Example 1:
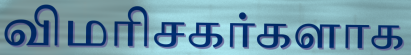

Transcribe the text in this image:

விமரிசகர்களாக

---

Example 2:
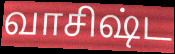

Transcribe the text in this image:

வாசிஷ்ட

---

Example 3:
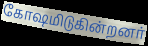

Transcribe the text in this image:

கோஷமிடுகின்றனர்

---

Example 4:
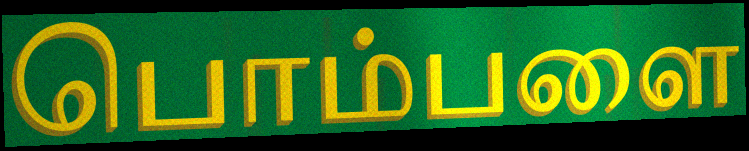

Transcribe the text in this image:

பொம்பளை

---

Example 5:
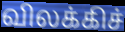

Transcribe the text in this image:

விலக்கிச்